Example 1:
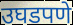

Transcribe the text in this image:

उघडपणे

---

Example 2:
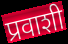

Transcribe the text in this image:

प्रवाशी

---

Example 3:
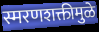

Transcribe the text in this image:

स्मरणशक्तीमुळे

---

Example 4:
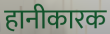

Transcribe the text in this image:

हानीकारक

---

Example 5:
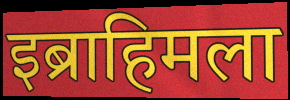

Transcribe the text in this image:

इब्राहिमला